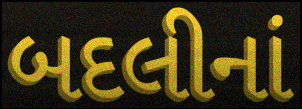
બદલીનાં